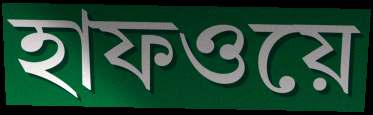
হাফওয়ে